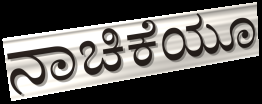
ನಾಚಿಕೆಯೂ